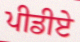
ਪੀਡੀਏ